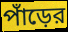
পাঁড়ের